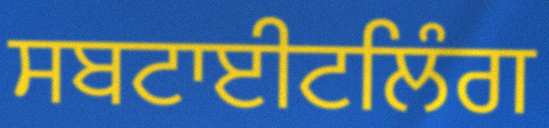
ਸਬਟਾਈਟਲਿੰਗ